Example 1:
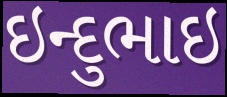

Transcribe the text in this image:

ઇન્દુભાઇ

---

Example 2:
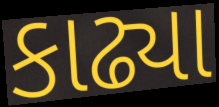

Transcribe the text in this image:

કાઢ્યા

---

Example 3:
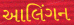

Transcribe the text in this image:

આલિંગન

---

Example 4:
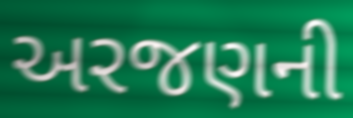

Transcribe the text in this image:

અરજણની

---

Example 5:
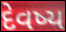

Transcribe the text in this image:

દેવષ્ય